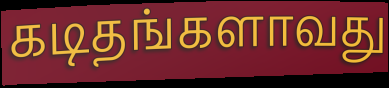
கடிதங்களாவது